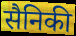
सैनिकी